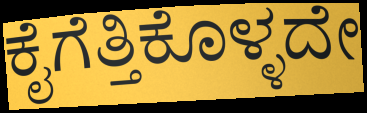
ಕೈಗೆತ್ತಿಕೊಳ್ಳದೇ